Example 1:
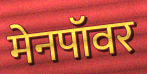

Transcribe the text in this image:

मेनपॉवर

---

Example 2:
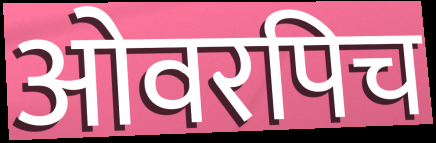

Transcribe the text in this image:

ओवरपिच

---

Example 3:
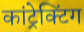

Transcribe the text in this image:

कांट्रेक्टिंग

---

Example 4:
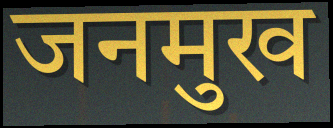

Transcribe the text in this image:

जनमुख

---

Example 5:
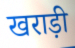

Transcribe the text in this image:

खराड़ी